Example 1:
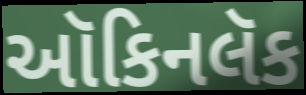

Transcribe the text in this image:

ઑકિનલૅક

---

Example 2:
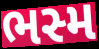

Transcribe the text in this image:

ભસ્મ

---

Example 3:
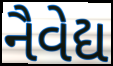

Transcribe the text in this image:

નૈવેદ્ય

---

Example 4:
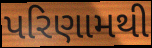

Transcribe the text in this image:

પરિણામથી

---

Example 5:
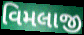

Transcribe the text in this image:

વિમલાજી